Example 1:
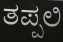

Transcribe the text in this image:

ತಪ್ಪಲಿ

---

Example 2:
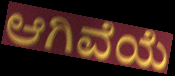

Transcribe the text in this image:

ಆಗಿವೆಯೆ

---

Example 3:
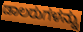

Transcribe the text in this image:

ಡಾಲರುಗಳನ್ನು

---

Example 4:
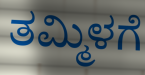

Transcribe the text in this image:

ತಮ್ಮಿಳಗೆ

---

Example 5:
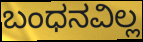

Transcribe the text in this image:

ಬಂಧನವಿಲ್ಲ